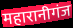
महारानीगंज